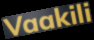
Vaakili